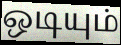
ஒடியும்